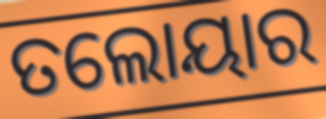
ତଲୋୟାର